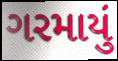
ગરમાયું